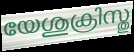
യേശുക്രിസ്തു